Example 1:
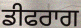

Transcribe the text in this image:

ਡੀਫਰਾਗ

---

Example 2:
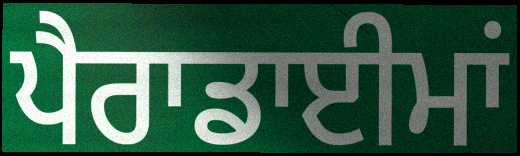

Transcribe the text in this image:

ਪੈਰਾਡਾਈਮਾਂ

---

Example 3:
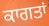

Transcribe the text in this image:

ਕਾਗਤਾਂ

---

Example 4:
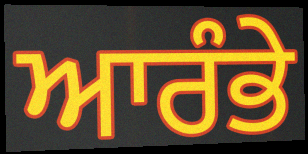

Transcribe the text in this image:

ਆਰੰਭੇ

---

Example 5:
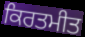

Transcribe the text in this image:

ਕਿਰਤਮੀਤ